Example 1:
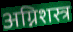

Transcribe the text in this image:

अग्निशस्त्र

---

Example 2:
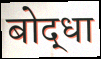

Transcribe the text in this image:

बोद्धा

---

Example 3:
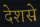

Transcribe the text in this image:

देशसे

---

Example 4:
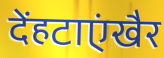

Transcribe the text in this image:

देंहटाएंखैर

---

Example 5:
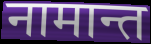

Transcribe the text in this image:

नामान्त